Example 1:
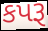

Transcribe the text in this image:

કપરૂ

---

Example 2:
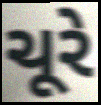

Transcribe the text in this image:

ચૂરે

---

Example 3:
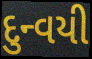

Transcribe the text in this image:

દુન્વયી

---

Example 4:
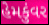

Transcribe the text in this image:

હેમકુંવર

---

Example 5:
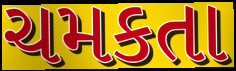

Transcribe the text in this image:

ચમકતા